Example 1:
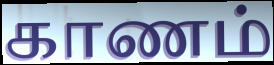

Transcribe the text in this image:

காணம்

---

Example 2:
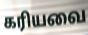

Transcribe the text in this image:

கரியவை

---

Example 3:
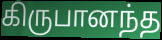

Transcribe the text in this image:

கிருபானந்த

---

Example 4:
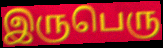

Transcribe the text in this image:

இருபெரு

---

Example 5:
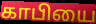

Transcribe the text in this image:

காபியை